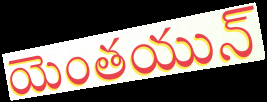
యెంతయున్